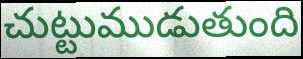
చుట్టుముడుతుంది